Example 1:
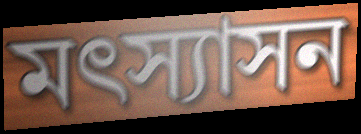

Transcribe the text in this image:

মৎস্যাসন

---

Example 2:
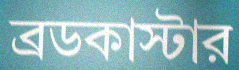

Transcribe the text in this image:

ব্রডকাস্টার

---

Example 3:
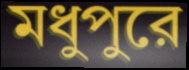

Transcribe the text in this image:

মধুপুরে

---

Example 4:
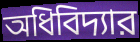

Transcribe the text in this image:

অধিবিদ্যার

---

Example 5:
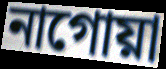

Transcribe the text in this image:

নাগোয়া